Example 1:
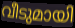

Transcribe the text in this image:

വീടുമായി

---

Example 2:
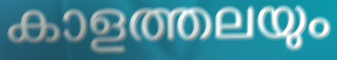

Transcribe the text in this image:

കാളത്തലയും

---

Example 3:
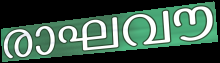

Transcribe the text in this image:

രാഘവൗ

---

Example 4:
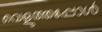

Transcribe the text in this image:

വെളുത്തപ്പോൾ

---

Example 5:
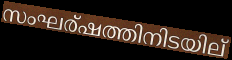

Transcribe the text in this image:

സംഘര്ഷത്തിനിടയില്